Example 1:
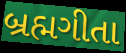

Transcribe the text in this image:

બ્રહ્મગીતા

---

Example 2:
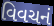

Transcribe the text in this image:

વિવચનં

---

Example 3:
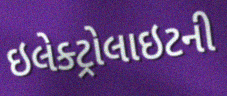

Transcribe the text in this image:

ઇલેક્ટ્રોલાઇટની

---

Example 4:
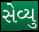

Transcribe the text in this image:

સેવ્યુ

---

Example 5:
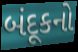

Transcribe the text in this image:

બંદૂકનો